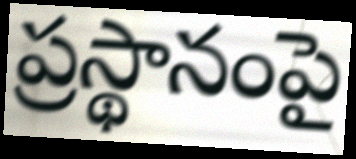
ప్రస్థానంపై